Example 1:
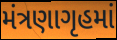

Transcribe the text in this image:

મંત્રણાગૃહમાં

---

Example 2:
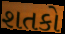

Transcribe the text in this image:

શતકો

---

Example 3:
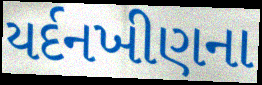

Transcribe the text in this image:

યર્દનખીણના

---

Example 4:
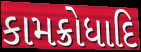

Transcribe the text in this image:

કામક્રોધાદિ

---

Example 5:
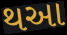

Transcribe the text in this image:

થઆ